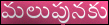
మలుపునకు